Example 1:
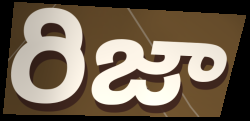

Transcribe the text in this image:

రిజా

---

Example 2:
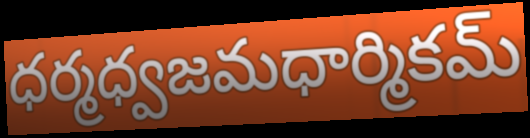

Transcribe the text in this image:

ధర్మధ్వజమధార్మికమ్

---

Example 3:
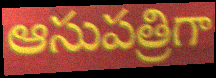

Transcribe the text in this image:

ఆసుపత్రిగా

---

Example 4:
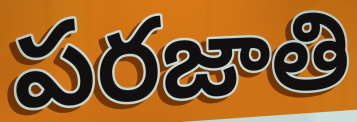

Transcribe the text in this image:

పరజాతి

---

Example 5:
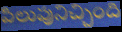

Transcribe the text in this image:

పిలుపునిచ్చింది